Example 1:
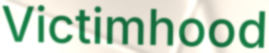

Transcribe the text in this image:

Victimhood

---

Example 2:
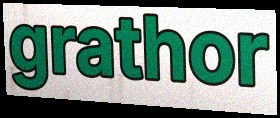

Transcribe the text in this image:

grathor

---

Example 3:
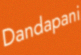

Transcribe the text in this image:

Dandapani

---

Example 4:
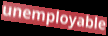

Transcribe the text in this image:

unemployable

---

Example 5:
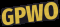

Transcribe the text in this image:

GPWO